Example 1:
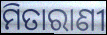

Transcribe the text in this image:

ମିତାରାଣୀ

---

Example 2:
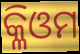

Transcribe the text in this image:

କ୍ଳିଓମ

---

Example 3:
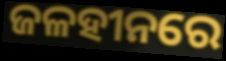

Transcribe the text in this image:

ଜଳହୀନରେ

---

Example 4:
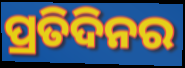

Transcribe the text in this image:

ପ୍ରତିଦିନର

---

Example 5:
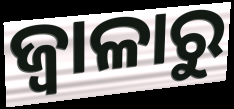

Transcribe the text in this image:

ଜ୍ଵାଳାରୁ